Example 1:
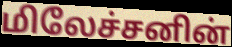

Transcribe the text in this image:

மிலேச்சனின்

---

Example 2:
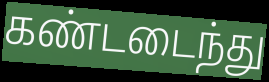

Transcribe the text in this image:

கண்டடைந்து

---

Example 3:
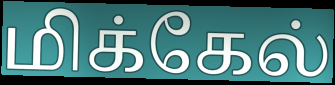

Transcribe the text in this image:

மிக்கேல்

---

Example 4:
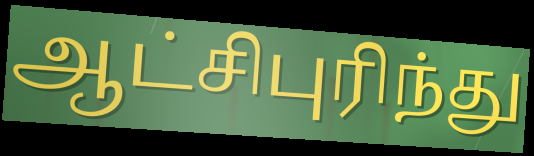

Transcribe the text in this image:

ஆட்சிபுரிந்து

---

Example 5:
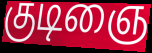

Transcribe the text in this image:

குடிஞை